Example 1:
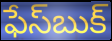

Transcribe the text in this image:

ఫేస్‌బుక్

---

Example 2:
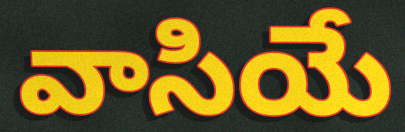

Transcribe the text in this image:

వాసియే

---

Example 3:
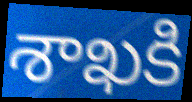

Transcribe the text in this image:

శాఖకి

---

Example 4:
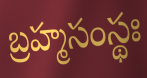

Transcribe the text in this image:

బ్రహ్మసంస్థః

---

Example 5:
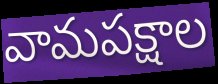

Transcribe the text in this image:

వామపక్షాల